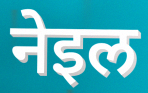
नेइल